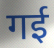
गई